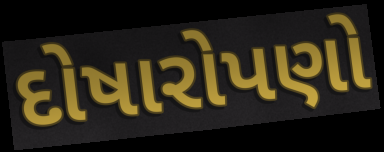
દોષારોપણો